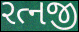
રત્નજી